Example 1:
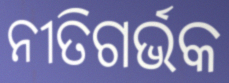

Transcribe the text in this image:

ନୀତିଗର୍ଭକ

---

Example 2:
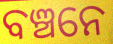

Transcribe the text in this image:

ବଞ୍ଚନେ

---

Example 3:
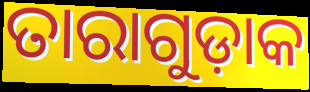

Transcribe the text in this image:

ତାରାଗୁଡ଼ାକ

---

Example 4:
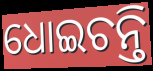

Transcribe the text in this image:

ଧୋଇଚନ୍ତି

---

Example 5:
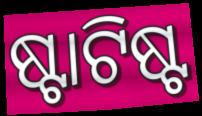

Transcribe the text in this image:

ଷ୍ଟାଟିଷ୍ଟ